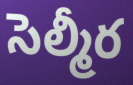
సెల్మీర